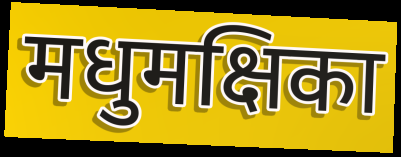
मधुमक्षिका